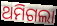
ଥମିଗଲା